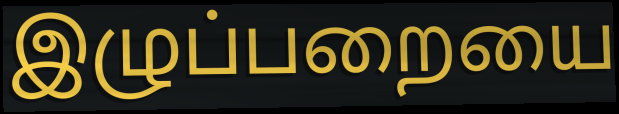
இழுப்பறையை